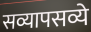
सव्यापसव्ये